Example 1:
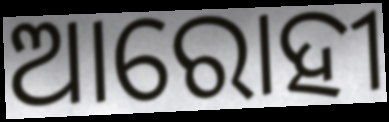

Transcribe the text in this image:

ଆରୋହୀ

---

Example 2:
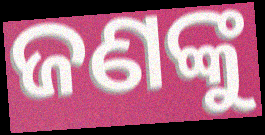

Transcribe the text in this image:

ଜଣଙ୍କୁ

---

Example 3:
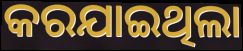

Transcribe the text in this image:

କରଯାଇଥିଲା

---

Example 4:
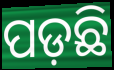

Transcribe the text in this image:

ପଡ଼ଛି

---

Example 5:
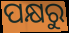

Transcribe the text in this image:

ପକ୍ଷରୁ